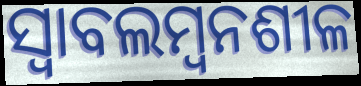
ସ୍ୱାବଲମ୍ୱନଶୀଳ